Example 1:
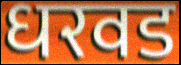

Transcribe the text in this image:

धरवड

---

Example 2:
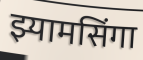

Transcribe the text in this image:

झ्यामसिंगा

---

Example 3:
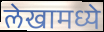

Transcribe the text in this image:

लेखामध्ये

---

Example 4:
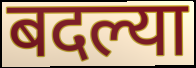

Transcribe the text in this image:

बदल्या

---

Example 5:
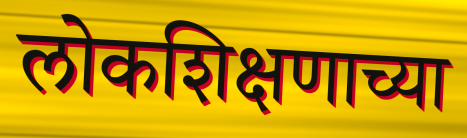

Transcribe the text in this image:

लोकशिक्षणाच्या